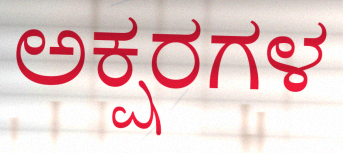
ಅಕ್ಷರಗಳ